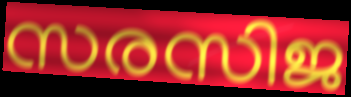
സരസിജ